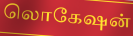
லொகேஷன்